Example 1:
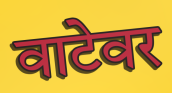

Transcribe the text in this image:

वाटेवर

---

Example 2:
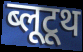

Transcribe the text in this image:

ब्लूटूथ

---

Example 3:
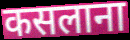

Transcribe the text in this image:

कसलाना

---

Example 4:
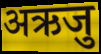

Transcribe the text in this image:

अऋजु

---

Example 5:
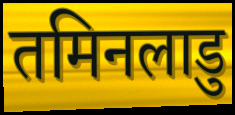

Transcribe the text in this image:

तमिनलाडु